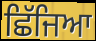
ਛਿੱਜਿਆ